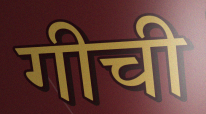
गीची